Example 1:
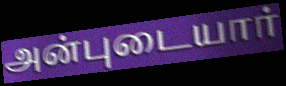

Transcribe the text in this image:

அன்புடையார்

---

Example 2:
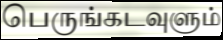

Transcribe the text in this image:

பெருங்கடவுளும்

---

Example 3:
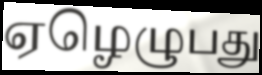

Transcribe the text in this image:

ஏழெழுபது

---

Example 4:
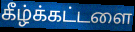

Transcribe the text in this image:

கீழ்க்கட்டளை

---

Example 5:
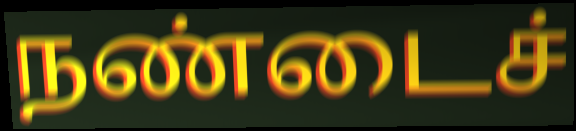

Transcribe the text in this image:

நண்டைச்